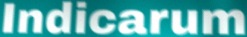
Indicarum